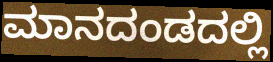
ಮಾನದಂಡದಲ್ಲಿ